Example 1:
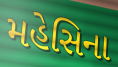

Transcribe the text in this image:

મહેસિના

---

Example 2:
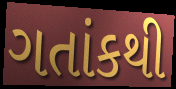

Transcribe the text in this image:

ગતાંકથી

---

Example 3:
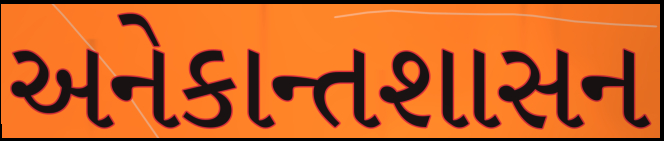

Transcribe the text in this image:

અનેકાન્તશાસન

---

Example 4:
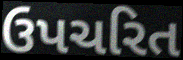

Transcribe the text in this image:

ઉપચરિત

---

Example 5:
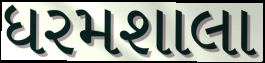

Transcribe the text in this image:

ધરમશાલા